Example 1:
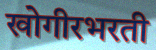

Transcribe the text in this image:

खोगीरभरती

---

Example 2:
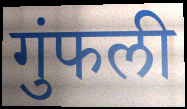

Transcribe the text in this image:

गुंफली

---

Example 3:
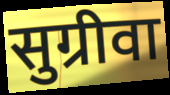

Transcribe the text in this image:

सुग्रीवा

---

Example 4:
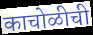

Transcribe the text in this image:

काचोळीची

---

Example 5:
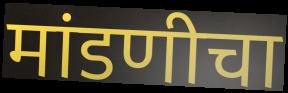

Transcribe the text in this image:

मांडणीचा